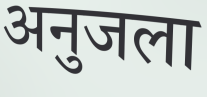
अनुजला